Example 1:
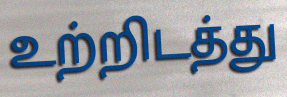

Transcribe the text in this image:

உற்றிடத்து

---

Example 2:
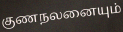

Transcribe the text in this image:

குணநலனையும்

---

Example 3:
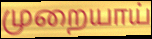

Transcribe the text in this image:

முறையாய்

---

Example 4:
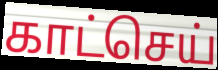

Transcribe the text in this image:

காட்செய்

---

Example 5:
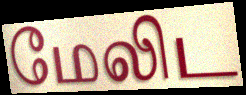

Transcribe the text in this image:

மேலிட